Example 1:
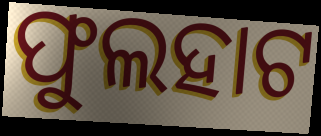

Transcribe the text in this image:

ଫୁଲହାଟ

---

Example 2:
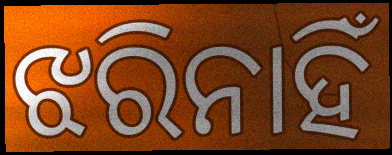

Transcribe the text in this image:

ଝରିନାହିଁ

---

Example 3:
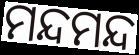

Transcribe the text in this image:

ମନ୍ଦମନ୍ଦ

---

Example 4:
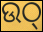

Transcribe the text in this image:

ଉଠ୍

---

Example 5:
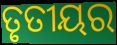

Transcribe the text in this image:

ତୃତୀୟର